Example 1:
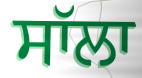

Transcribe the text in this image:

ਸਾੱਲਾ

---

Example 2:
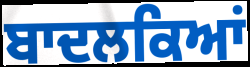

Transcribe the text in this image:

ਬਾਦਲਕਿਆਂ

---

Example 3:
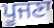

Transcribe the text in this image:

ਪੂਜਣਾ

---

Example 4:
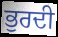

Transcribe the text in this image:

ਭੁਰਦੀ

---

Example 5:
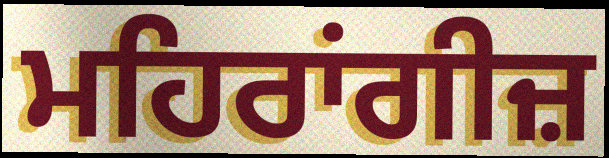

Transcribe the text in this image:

ਮਹਿਰਾਂਗੀਜ਼